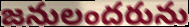
జనులందరును